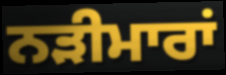
ਨੜੀਮਾਰਾਂ